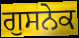
ਗੁਸਨੇਕ